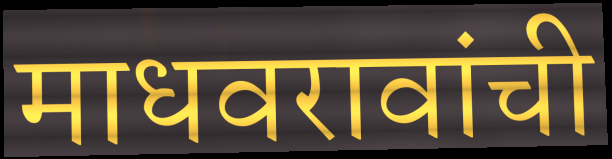
माधवरावांची